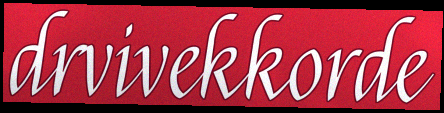
drvivekkorde